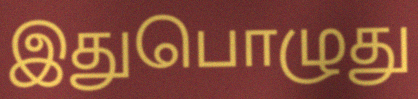
இதுபொழுது